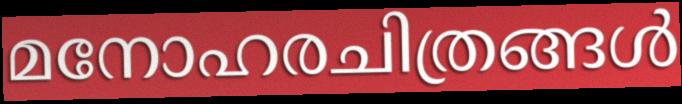
മനോഹരചിത്രങ്ങൾ